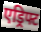
एड्रिफ्ट